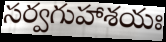
సర్వగుహాశయః